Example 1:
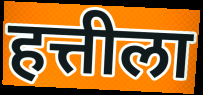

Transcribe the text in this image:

हत्तीला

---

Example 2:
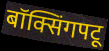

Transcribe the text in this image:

बॉक्सिंगपटू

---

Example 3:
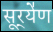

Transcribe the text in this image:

सूर्ये॑ण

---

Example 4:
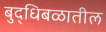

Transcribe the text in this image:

बुद्धिबळातील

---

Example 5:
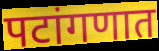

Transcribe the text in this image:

पटांगणात